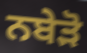
ਨਬੇੜੋ